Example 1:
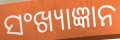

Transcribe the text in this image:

ସଂଖ୍ୟାଜ୍ଞାନ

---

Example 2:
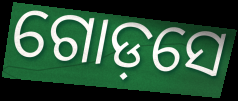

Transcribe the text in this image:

ଗୋଡ଼ସେ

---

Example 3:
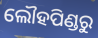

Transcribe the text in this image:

ଲୌହପିଣ୍ଡରୁ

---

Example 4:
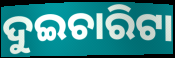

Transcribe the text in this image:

ଦୁଇଚାରିଟା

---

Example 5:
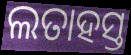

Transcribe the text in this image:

ଲତାହସ୍ତ